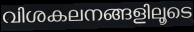
വിശകലനങ്ങളിലൂടെ